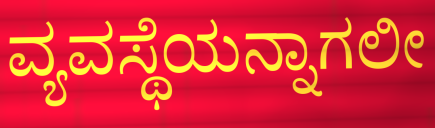
ವ್ಯವಸ್ಥೆಯನ್ನಾಗಲೀ